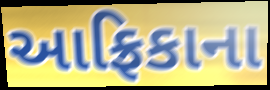
આફ્રિકાના